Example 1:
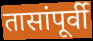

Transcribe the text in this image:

तासांपूर्वी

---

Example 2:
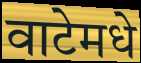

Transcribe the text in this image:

वाटेमधे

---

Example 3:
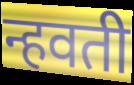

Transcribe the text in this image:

न्हवती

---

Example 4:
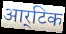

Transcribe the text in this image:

आर्टिक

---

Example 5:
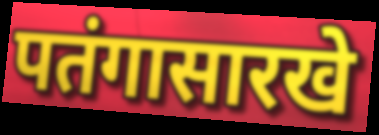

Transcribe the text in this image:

पतंगासारखे